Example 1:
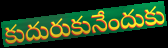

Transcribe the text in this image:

కుదురుకునేందుకు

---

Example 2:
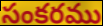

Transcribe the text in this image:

సంకరము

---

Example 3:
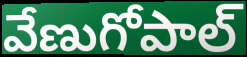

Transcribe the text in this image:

వేణుగోపాల్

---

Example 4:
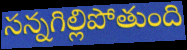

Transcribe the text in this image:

సన్నగిల్లిపోతుంది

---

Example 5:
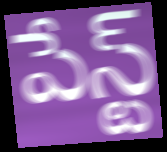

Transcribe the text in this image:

పేస్ట్